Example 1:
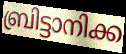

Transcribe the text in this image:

ബ്രിട്ടാനിക്ക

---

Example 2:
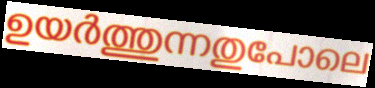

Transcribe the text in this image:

ഉയർത്തുന്നതുപോലെ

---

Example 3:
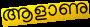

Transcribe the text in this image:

ആളാണു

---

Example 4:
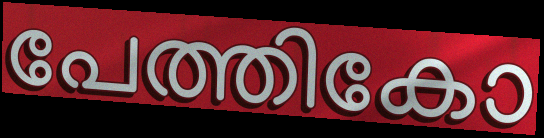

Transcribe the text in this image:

പേത്തികോ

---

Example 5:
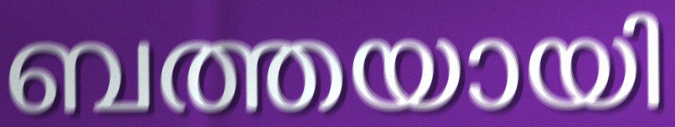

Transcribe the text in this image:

ബത്തയായി